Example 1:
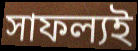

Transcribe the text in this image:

সাফল্যই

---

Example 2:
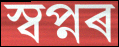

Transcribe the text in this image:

স্বপ্নৰ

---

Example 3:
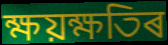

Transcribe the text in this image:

ক্ষয়ক্ষতিৰ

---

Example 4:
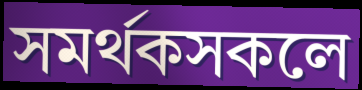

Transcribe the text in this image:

সমৰ্থকসকলে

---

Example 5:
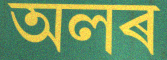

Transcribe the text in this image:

অলৰ